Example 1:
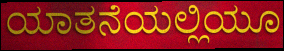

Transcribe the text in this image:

ಯಾತನೆಯಲ್ಲಿಯೂ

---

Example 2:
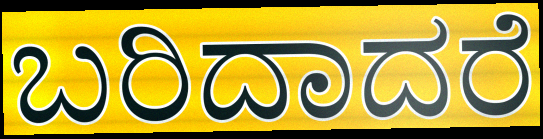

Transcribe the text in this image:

ಬರಿದಾದರೆ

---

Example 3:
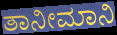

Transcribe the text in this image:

ತಾನೀಮಾನಿ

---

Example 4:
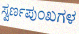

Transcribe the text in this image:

ಸ್ವರ್ಣಪುಂಖಗಳ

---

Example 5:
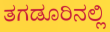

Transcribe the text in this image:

ತಗಡೂರಿನಲ್ಲಿ